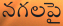
నగలపై